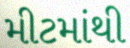
મીટમાંથી